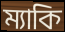
ম্যাকি